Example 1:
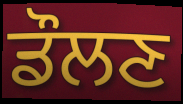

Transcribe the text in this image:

ਡੌਲਣ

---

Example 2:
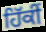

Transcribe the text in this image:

ਹਿੱਕੀਂ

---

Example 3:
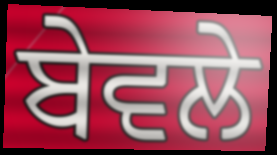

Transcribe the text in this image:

ਬੇਵਲੇ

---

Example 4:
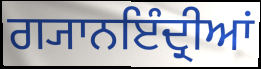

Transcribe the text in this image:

ਗ੍ਯਾਨਇੰਦ੍ਰੀਆਂ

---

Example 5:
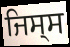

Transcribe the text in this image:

ਜਿਸ੍ਸ